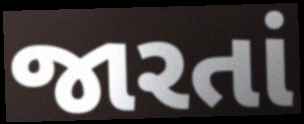
જારતાં